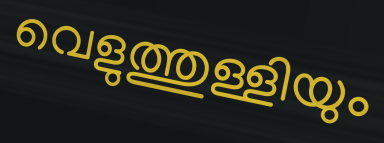
വെളുത്തുള്ളിയും